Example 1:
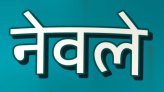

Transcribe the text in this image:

नेवले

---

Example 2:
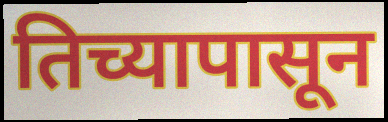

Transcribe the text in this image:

तिच्यापासून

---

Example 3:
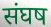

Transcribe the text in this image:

संघष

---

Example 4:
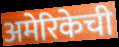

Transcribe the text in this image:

अमेरिकेची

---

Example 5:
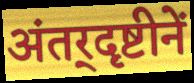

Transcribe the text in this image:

अंतर्दृष्टीनें